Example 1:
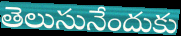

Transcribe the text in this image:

తెలుసునేందుకు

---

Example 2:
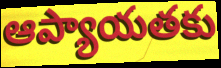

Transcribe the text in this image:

ఆప్యాయతకు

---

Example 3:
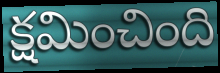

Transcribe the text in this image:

క్షమించింది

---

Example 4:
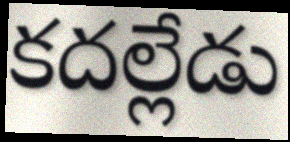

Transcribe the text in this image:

కదల్లేడు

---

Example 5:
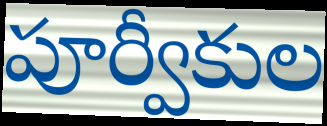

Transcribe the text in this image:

పూర్వీకుల